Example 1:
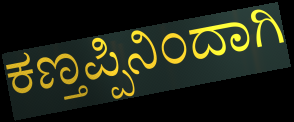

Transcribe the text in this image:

ಕಣ್ತಪ್ಪಿನಿಂದಾಗಿ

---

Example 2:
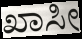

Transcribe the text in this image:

ಖಾಸೀ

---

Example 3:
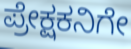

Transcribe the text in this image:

ಪ್ರೇಕ್ಷಕನಿಗೇ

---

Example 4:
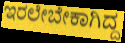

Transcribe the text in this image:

ಇರಲೇಬೇಕಾಗಿದ್ದ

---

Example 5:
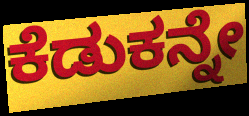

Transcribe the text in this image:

ಕೆಡುಕನ್ನೇ